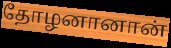
தோழனானான்